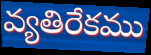
వ్యతిరేకము